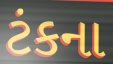
ટંકના